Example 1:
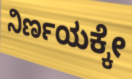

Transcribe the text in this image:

ನಿರ್ಣಯಕ್ಕೇ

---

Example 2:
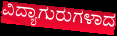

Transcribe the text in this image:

ವಿದ್ಯಾಗುರುಗಳಾದ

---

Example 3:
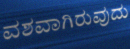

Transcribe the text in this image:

ವಶವಾಗಿರುವುದು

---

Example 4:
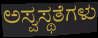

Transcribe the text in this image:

ಅಸ್ವಸ್ಥತೆಗಳು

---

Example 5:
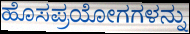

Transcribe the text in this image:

ಹೊಸಪ್ರಯೋಗಗಳನ್ನು